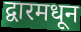
द्वारमधून